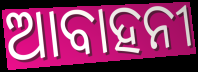
ଆବାହନୀ